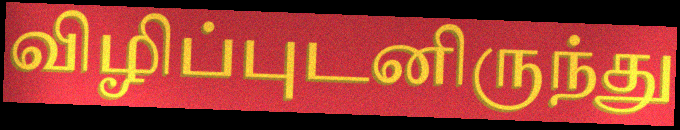
விழிப்புடனிருந்து